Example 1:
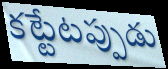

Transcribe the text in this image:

కట్టేటప్పుడు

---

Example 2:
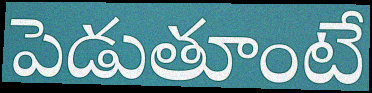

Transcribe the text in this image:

పెడుతూంటే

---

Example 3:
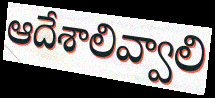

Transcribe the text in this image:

ఆదేశాలివ్వాలి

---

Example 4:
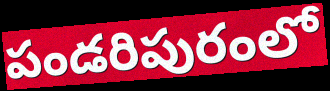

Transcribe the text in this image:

పండరిపురంలో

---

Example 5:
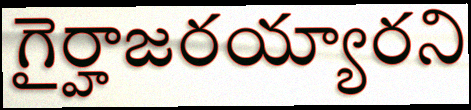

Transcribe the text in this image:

గైర్హాజరయ్యారని